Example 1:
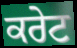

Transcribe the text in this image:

ਕਰੇਟ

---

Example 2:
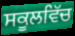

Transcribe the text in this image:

ਸਕੂਲਵਿੱਚ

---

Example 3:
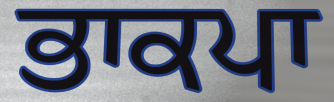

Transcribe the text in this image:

ਭਾਕਪਾ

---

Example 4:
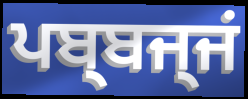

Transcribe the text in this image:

ਪਬ੍ਬਜ੍ਜਂ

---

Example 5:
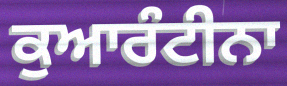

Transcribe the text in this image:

ਕੁਆਰੰਟੀਨਾ